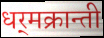
धर्मक्रान्ती